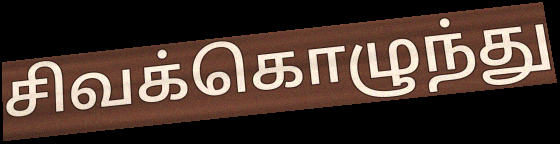
சிவக்கொழுந்து